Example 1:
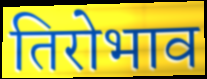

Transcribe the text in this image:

तिरोभाव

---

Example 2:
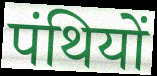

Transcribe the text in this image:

पंथियों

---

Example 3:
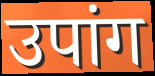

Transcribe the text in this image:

उपांग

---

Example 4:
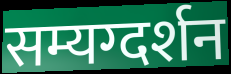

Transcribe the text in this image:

सम्‍यग्‍दर्शन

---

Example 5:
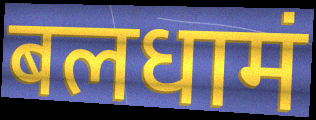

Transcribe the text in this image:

बलधामं